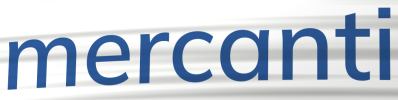
mercanti